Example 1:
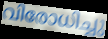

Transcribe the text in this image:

വിരോധിച്ചു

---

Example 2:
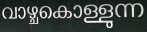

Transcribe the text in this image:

വാഴ്ചകൊള്ളുന്ന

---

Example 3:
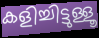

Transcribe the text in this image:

കളിച്ചിട്ടുള്ളൂ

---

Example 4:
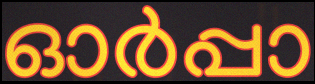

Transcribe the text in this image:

ഓർപ്പാ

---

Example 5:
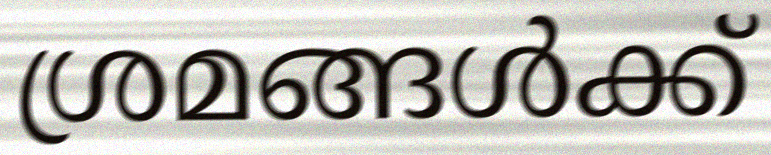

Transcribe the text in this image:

ശ്രമങ്ങൾക്ക്